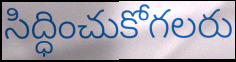
సిద్ధించుకోగలరు